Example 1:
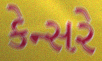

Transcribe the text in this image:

કેન્સરે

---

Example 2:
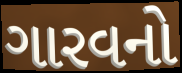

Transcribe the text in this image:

ગારવનો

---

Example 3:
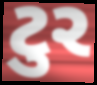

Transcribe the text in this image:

ટુર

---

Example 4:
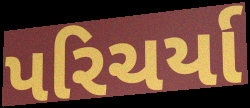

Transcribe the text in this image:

પરિચર્યા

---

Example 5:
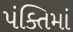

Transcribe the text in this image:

પંક્તિમાં